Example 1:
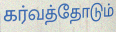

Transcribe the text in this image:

கர்வத்தோடும்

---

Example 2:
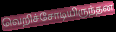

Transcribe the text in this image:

வெறிச்சோடியிருந்தன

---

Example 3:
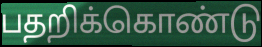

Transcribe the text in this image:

பதறிக்கொண்டு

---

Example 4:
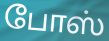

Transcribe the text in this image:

போஸ்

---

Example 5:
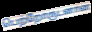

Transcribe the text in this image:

பெற்றோருடனான